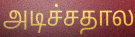
அடிச்சதால